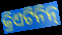
କ୍ରିଏଟିନିନ୍